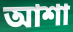
আশা